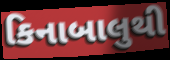
કિનાબાલુથી